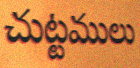
చుట్టములు